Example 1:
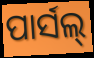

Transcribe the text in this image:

ପାର୍ସଲ୍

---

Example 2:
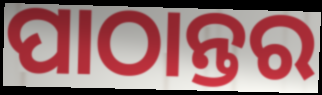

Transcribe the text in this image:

ପାଠାନ୍ତର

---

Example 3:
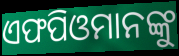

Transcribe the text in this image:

ଏଫପିଓମାନଙ୍କୁ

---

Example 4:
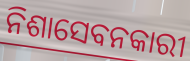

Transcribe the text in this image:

ନିଶାସେବନକାରୀ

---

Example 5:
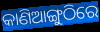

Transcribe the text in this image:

କାଣିଆଙ୍ଗୁଠିରେ